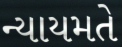
ન્યાયમતે